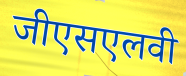
जीएसएलवी